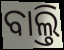
ବାଲ୍ତି